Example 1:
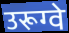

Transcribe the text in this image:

उरूग्वे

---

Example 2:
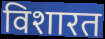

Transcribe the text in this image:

विशारत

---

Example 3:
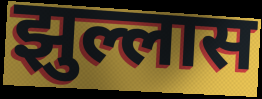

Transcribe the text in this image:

झुल्लास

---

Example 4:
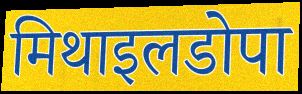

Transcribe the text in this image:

मिथाइलडोपा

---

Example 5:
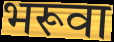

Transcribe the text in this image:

भरूवा